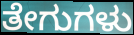
ತೇಗುಗಳು